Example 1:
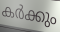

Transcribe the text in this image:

കർക്കും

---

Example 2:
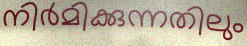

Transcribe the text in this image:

നിർമിക്കുന്നതിലും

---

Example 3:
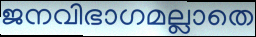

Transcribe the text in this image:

ജനവിഭാഗമല്ലാതെ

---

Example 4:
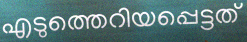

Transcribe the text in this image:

എടുത്തെറിയപ്പെട്ടത്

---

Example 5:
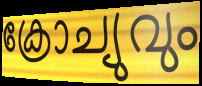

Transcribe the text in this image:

ക്രോച്യുവും